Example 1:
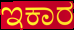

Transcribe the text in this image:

ಇಕಾರ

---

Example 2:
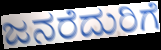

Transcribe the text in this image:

ಜನರೆದುರಿಗೆ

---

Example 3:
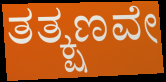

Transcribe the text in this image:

ತತ್ಕ್ಷಣವೇ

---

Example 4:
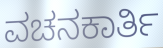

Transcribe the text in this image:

ವಚನಕಾರ್ತಿ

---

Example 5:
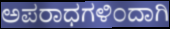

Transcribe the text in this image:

ಅಪರಾಧಗಳಿಂದಾಗಿ